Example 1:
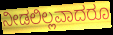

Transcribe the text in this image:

ನೀಡಲಿಲ್ಲವಾದರೂ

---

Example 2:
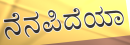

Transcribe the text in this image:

ನೆನಪಿದೆಯಾ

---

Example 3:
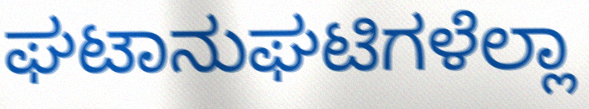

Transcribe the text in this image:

ಘಟಾನುಘಟಿಗಳೆಲ್ಲಾ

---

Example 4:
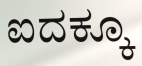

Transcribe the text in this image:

ಐದಕ್ಕೂ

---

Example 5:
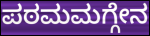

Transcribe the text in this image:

ಪಠಮಮಗ್ಗೇನ